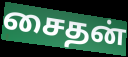
சைதன்